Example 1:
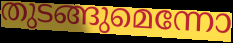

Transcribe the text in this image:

തുടങ്ങുമെന്നോ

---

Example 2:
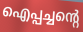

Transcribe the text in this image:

ഐപ്പച്ചന്റെ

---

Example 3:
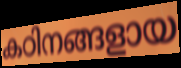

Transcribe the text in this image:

കഠിനങ്ങളായ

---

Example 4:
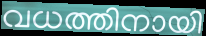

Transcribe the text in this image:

വധത്തിനായി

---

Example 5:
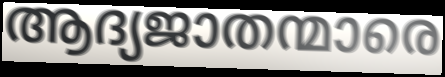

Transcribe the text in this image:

ആദ്യജാതന്മാരെ